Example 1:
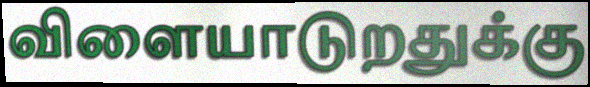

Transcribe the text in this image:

விளையாடுறதுக்கு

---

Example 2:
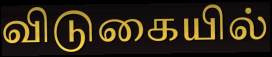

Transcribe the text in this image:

விடுகையில்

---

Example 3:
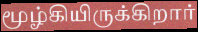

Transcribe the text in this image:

மூழ்கியிருக்கிறார்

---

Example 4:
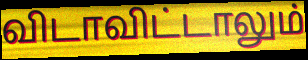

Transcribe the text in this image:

விடாவிட்டாலும்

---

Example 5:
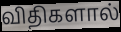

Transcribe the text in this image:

விதிகளால்